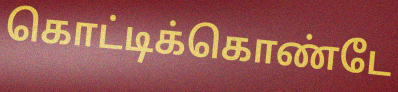
கொட்டிக்கொண்டே